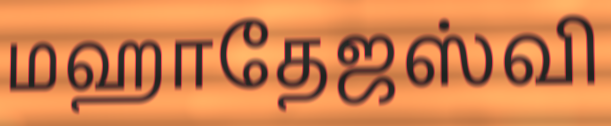
மஹாதேஜஸ்வி